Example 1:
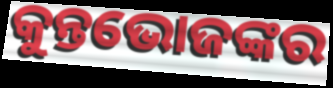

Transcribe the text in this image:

କୁନ୍ତଭୋଜଙ୍କର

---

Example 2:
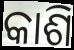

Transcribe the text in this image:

କାଶି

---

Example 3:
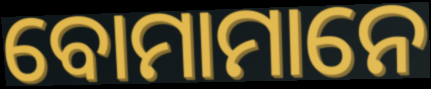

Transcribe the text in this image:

ବୋମାମାନେ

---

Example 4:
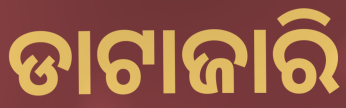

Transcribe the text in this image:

ଡାଟାଜାରି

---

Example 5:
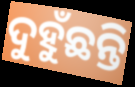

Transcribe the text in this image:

ଦୁହୁଁଛନ୍ତି